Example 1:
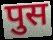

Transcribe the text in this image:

पुस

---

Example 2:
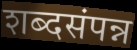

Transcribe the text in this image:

शब्दसंपन्न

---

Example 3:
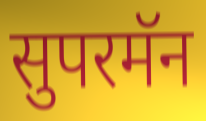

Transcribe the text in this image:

सुपरमॅन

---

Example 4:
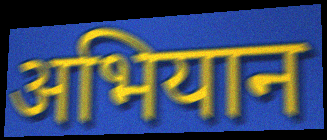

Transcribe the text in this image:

अभियान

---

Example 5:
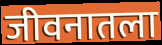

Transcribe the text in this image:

जीवनातला